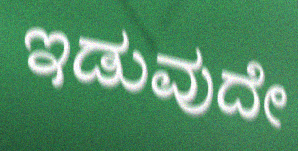
ಇಡುವುದೇ